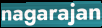
nagarajan